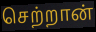
செற்றான்